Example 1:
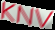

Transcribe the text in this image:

KNV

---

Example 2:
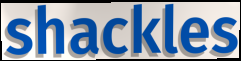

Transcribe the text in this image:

shackles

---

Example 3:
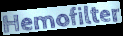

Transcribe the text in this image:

Hemofilter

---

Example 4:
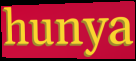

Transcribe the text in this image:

hunya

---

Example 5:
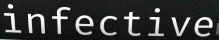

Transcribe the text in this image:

infective